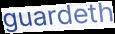
guardeth